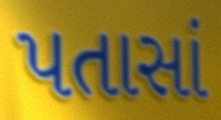
પતાસાં